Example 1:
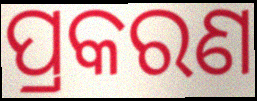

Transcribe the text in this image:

ପ୍ରକରଣ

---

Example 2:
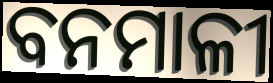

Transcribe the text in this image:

ବନମାଳୀ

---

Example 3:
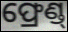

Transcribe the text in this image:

ଫ୍ରେଣ୍ଡ୍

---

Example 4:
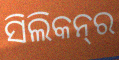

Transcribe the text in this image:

ସିଲିକନ୍‌ର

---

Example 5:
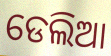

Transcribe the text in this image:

ଡେଲିଆ